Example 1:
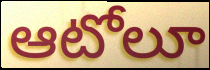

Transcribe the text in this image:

ఆటోలూ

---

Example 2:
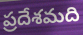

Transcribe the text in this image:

ప్రదేశమది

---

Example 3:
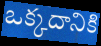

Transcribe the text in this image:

ఒక్కదానికి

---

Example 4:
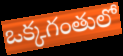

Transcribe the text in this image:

ఒక్కగంతులో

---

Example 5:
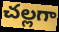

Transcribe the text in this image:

చల్లగా